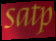
satp